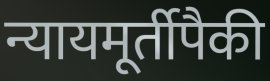
न्यायमूर्तीपैकी